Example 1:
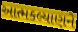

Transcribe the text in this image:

આત્મકલ્યાણને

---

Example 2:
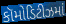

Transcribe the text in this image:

કૉમોડિટીઝમાં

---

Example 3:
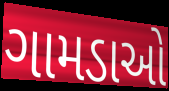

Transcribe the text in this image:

ગામડાઓ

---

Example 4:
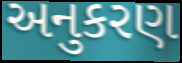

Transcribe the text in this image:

અનુકરણ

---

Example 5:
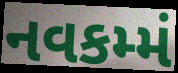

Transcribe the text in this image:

નવકમ્મં